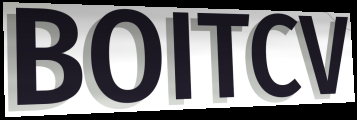
BOITCV